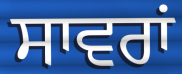
ਸਾਵਰਾਂ